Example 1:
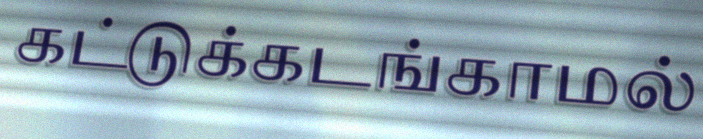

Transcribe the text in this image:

கட்டுக்கடங்காமல்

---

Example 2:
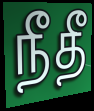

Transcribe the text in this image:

நீதீ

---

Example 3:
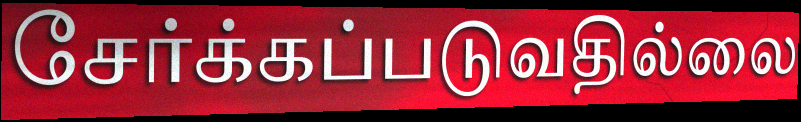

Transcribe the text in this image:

சேர்க்கப்படுவதில்லை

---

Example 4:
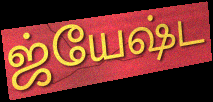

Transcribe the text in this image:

ஜ்யேஷ்ட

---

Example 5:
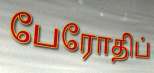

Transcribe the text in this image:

பேரோதிப்